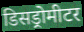
डिसड्रोमीटर